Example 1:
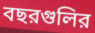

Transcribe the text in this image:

বছরগুলির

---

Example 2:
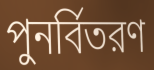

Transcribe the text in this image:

পুনর্বিতরণ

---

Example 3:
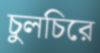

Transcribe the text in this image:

চুলচিরে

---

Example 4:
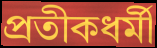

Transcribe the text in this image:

প্রতীকধর্মী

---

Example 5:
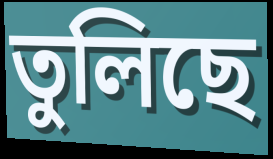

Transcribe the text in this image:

তুলিছে